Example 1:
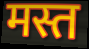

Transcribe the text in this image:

मस्त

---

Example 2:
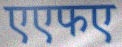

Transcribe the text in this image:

एएफए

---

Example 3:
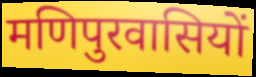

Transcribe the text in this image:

मणिपुरवासियों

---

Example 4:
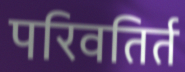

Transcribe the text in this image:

परिवतिर्त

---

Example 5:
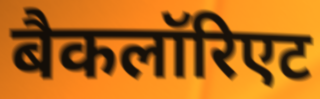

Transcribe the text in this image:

बैकलॉरिएट